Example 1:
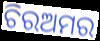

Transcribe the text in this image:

ଚିରଅମର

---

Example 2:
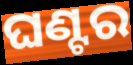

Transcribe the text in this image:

ଘଣ୍ଟର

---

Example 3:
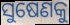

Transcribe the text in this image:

ସୁଷେଣକୁ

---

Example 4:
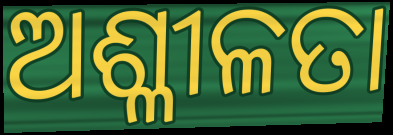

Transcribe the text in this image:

ଅଶ୍ଳୀଳତା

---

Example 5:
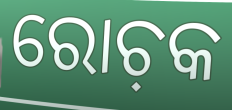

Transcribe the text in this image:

ରୋଚ଼କ